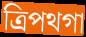
ত্রিপথগা